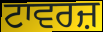
ਟਾਵਰਜ਼